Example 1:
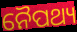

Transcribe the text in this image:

ନୈପଥ୍ୟ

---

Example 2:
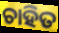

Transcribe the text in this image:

ଚାହିତ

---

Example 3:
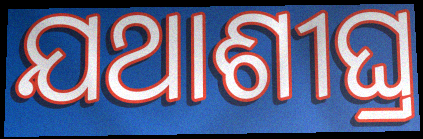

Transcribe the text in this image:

ଯଥାଶୀଘ୍ର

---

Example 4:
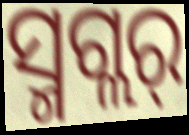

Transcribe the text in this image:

ସ୍ମଗ୍ଲର୍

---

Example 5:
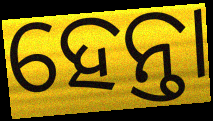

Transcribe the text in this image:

ହେନ୍ତା